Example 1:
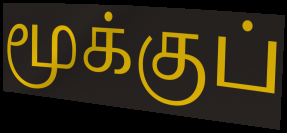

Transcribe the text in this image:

மூக்குப்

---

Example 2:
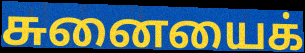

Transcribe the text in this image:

சுனையைக்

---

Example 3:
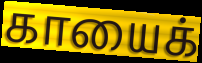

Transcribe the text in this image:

காயைக்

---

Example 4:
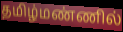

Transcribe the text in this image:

தமிழ்மண்ணில்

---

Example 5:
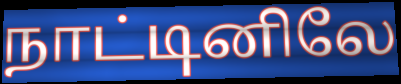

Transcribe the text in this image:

நாட்டினிலே